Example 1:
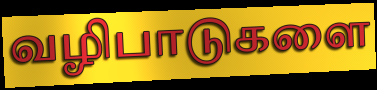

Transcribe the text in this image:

வழிபாடுகளை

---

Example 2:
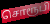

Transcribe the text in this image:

சொரூபி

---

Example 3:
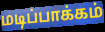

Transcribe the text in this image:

மடிப்பாக்கம்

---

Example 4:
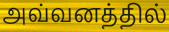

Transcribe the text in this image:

அவ்வனத்தில்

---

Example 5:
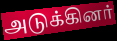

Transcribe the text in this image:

அடுக்கினர்